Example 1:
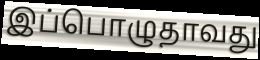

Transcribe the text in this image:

இப்பொழுதாவது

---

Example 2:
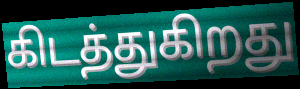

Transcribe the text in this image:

கிடத்துகிறது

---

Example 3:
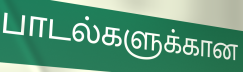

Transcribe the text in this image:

பாடல்களுக்கான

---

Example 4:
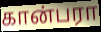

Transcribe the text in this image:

கான்பரா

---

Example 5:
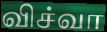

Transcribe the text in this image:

விச்வா